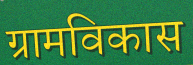
ग्रामविकास